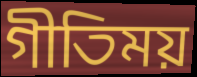
গীতিময়